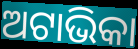
ଅଟାଭିକା